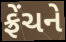
ફ્રેંચને